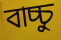
বাচ্চু